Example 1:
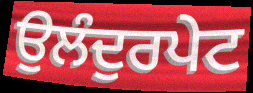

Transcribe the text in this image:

ਉਲੰਦੁਰਪੇਟ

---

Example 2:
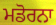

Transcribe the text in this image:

ਮਡੋਰਨਾ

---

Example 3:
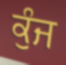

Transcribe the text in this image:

ਕੁੰਜ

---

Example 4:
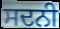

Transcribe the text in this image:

ਸਦਨੀ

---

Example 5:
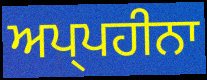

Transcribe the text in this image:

ਅਪ੍ਪਹੀਨਾ